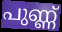
പുണ്ണ്